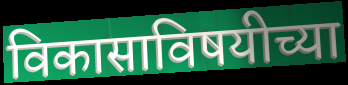
विकासाविषयीच्या